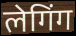
लेगिंग